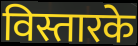
विस्तारके